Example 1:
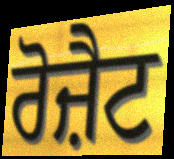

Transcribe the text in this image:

ਰੋਜ਼ੈਟ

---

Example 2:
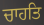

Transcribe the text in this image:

ਚਾਹਤਿ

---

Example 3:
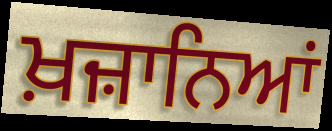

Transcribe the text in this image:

ਖ਼ਜ਼ਾਨਿਆਂ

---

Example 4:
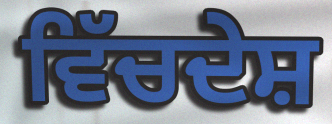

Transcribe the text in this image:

ਵਿੱਚਦੇਸ਼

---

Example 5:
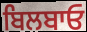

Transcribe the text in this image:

ਬਿਲਬਾਓ